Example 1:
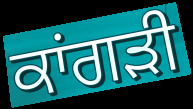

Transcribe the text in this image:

ਕਾਂਗੜੀ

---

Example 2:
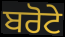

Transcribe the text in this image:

ਬਰੋਟੇ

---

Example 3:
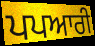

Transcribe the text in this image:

ਪਪਆਰੀ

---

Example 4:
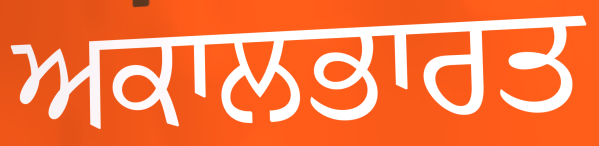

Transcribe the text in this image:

ਅਕਾਲਭਾਰਤ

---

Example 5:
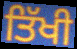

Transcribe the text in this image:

ਤਿੱਖੀ